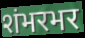
शंभरभर